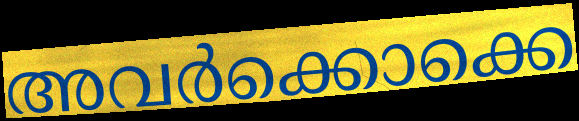
അവർക്കൊക്കെ